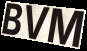
BVM